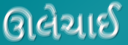
ઊલેચાઈ